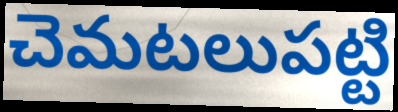
చెమటలుపట్టి